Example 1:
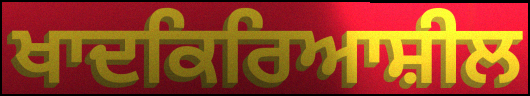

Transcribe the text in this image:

ਖਾਦਕਿਰਿਆਸ਼ੀਲ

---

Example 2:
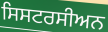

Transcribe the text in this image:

ਸਿਸਟਰਸੀਅਨ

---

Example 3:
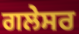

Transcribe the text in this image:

ਗਲੇਸਰ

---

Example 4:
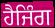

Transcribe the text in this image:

ਹੈਜਿੰਗ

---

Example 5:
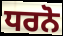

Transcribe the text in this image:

ਧਰਨੋ